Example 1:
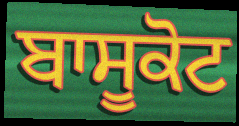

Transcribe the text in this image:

ਬਾਸੂਕੋਟ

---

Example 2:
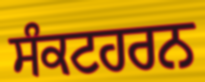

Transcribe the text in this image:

ਸੰਕਟਹਰਨ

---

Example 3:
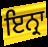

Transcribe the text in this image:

ਇਨ੍ਰਾ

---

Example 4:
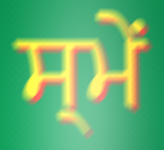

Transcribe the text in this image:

ਸ੍ਮੇਂ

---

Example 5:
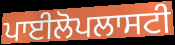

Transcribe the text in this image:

ਪਾਈਲੋਪਲਾਸਟੀ